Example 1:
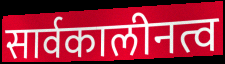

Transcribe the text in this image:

सार्वकालीनत्व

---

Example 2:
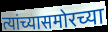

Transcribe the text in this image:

त्यांच्यासमोरच्या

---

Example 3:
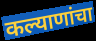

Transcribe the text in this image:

कल्याणांचा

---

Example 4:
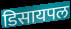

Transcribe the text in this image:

डिसायपल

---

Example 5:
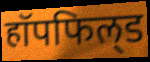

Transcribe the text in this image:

हॉपफिल्ड